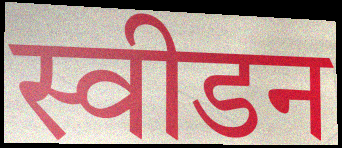
स्वीडन